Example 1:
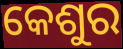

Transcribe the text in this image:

କେଶୁର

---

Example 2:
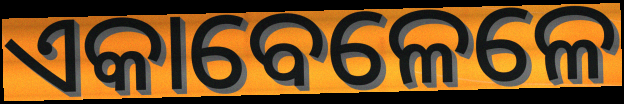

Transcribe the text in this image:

ଏକାବେଳେଳେ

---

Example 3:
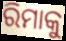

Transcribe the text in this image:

ରିମାକୁ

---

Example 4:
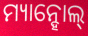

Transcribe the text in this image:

ମ୍ୟାନ୍ହୋଲ୍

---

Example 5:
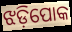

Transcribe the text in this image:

ଝଡ଼ିପୋକ